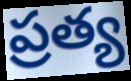
ప్రత్య